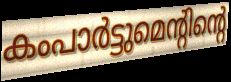
കംപാർട്ടുമെന്റിന്റെ